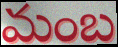
మంబ